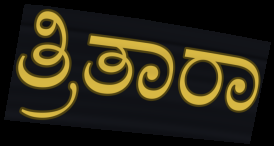
ತ್ರಿತಾರಾ